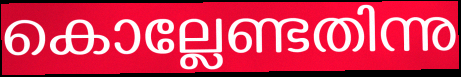
കൊല്ലേണ്ടതിന്നു